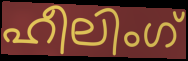
ഹീലിംഗ്